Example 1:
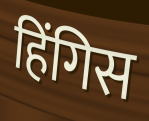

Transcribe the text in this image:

हिंगिस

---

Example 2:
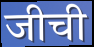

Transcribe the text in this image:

जीची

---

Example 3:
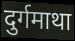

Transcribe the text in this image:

दुर्गमाथा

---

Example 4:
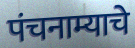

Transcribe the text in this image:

पंचनाम्याचे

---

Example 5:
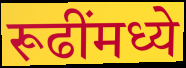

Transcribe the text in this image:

रूढींमध्ये